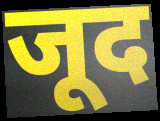
जूद